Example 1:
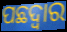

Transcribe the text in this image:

ପଛଦ୍ୱାର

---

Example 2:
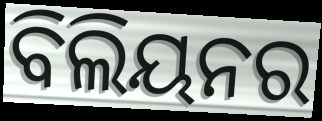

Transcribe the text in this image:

ବିଲିୟନର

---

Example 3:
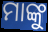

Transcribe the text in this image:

ମାଙ୍କୁ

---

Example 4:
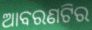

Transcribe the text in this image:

ଆବରଣଟିର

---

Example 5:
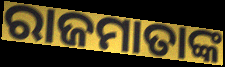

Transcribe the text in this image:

ରାଜମାତାଙ୍କ